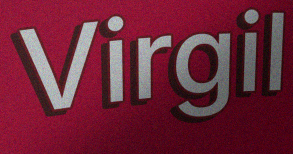
Virgil